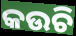
କଉଚି